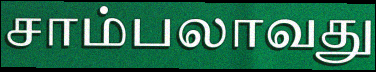
சாம்பலாவது